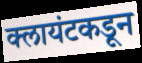
क्लायंटकडून